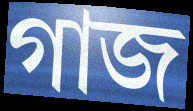
গাজ